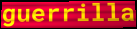
guerrilla